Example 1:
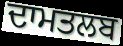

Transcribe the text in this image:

ਦਾਮਤਲਬ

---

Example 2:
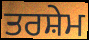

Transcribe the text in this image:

ਤਰਸ਼ੇਮ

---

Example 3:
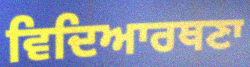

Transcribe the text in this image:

ਵਿਦਿਆਰਥਣਾ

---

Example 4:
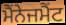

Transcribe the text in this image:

ਮੈਂਨੇਜਮੈਂਟ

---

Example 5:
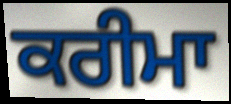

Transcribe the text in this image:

ਕਰੀਮਾ